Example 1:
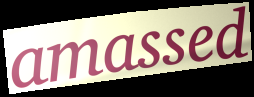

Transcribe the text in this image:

amassed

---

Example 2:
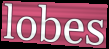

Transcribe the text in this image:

lobes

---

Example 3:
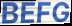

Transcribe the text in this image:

BEFG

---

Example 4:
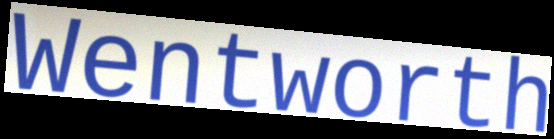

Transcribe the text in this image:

Wentworth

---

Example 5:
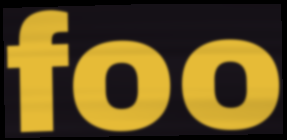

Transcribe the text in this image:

foo